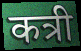
कत्री